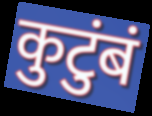
कुटुंबं